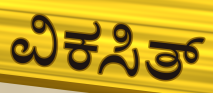
ವಿಕಸಿತ್